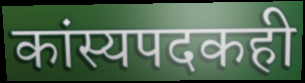
कांस्यपदकही